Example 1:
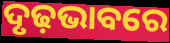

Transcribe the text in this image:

ଦୃଢ଼ଭାବରେ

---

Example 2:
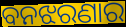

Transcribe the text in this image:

ବନଝରଣାର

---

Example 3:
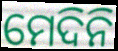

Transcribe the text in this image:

ମେଦିନି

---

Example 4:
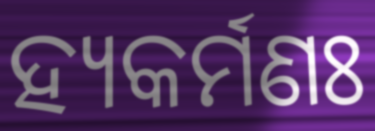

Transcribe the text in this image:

ହ୍ୟକର୍ମଣଃ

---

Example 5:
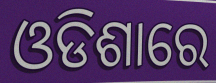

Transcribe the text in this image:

ଓଡିଶାରେ